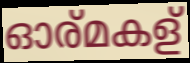
ഓര്മകള്